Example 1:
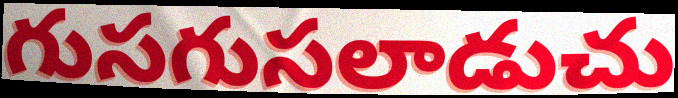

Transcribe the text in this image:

గుసగుసలాడుచు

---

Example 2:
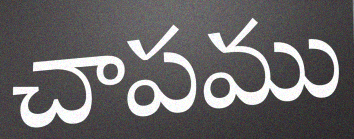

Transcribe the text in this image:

చాపము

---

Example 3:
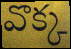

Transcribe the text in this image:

వొక్క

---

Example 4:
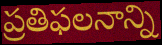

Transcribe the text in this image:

ప్రతిఫలనాన్ని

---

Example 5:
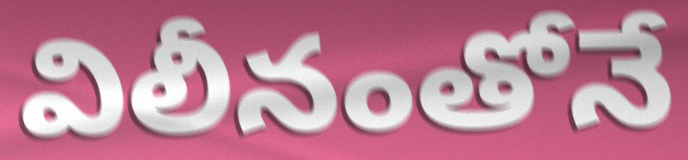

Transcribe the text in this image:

విలీనంతోనే